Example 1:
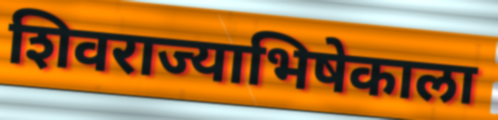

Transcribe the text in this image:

शिवराज्याभिषेकाला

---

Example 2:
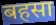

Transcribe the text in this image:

बहसा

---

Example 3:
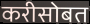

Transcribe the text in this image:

करीसोबत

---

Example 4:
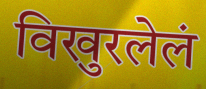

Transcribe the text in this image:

विखुरलेलं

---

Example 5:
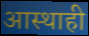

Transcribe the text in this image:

आस्थाही